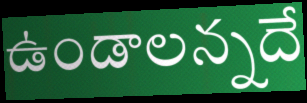
ఉండాలన్నదే